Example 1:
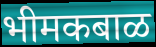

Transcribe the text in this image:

भीमकबाळ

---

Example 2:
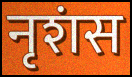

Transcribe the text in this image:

नृशंस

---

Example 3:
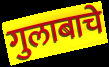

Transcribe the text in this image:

गुलाबाचे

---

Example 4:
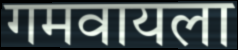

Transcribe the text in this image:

गमवायला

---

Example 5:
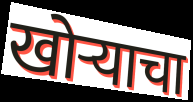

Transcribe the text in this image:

खोऱ्याचा